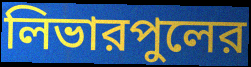
লিভারপুলের